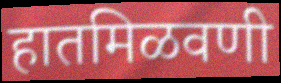
हातमिळवणी